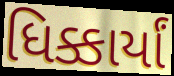
ધિક્કાર્યાં